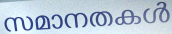
സമാനതകൾ